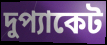
দুপ্যাকেট